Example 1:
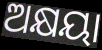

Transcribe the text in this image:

ଅକ୍ଷୟା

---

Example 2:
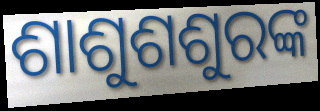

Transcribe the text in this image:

ଶାଶୁଶଶୁରଙ୍କ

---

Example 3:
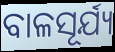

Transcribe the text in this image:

ବାଳସୂର୍ଯ୍ୟ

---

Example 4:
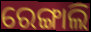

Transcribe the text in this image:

ରେଙ୍ଗାଲି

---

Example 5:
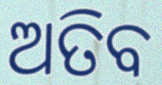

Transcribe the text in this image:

ଅତିବ